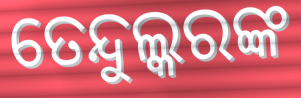
ତେନ୍ଦୁଲ୍କରଙ୍କ